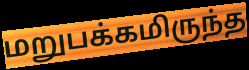
மறுபக்கமிருந்த